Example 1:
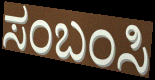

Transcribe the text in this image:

ಸಂಬಂಸಿ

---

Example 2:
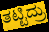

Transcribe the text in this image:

ತಟ್ಟಿದ್ರು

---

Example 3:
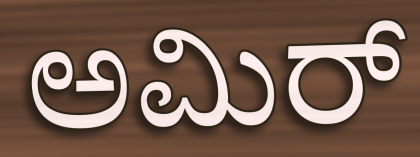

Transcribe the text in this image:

ಅಮಿರ್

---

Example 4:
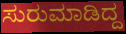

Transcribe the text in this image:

ಸುರುಮಾಡಿದ್ದ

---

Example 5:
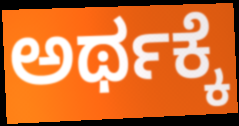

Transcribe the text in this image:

ಅರ್ಥಕ್ಕೆ